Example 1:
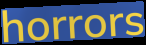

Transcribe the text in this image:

horrors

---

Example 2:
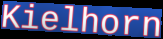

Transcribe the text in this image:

Kielhorn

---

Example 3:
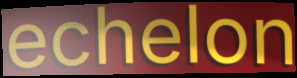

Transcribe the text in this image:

echelon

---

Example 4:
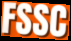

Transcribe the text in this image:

FSSC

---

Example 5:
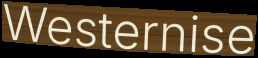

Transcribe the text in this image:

Westernise